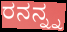
ರನನ್ನ್ನ